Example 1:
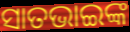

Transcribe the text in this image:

ସାତଭାଇଙ୍କ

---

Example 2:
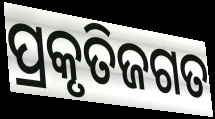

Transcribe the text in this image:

ପ୍ରକୃତିଜଗତ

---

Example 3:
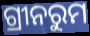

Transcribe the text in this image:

ଗ୍ରୀନରୁମ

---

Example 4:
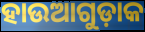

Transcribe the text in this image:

ହାଉଆଗୁଡ଼ାକ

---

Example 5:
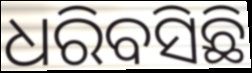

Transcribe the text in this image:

ଧରିବସିଛି